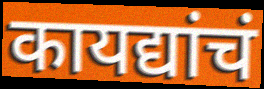
कायद्यांचं